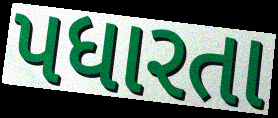
પધારતા